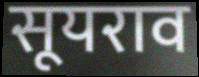
सूयराव